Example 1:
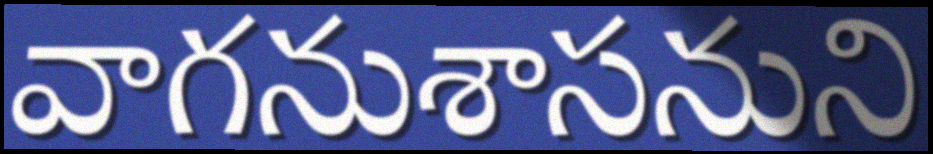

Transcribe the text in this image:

వాగనుశాసనుని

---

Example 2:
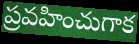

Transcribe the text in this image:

ప్రవహించుగాక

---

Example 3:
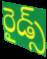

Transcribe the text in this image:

రైడ్స్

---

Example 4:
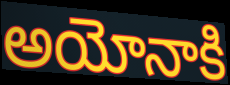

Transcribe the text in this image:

అయోనాకి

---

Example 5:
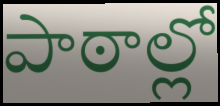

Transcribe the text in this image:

పాఠాల్లో